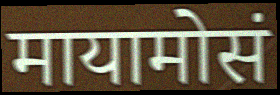
मायामोसं